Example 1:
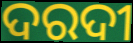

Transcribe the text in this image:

ଦରଦୀ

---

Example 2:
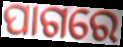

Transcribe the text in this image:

ପାଗରେ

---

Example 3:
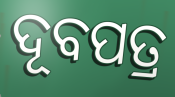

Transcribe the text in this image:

ଦୂବପତ୍ର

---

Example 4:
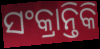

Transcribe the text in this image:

ସଂକ୍ରାନ୍ତିକି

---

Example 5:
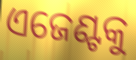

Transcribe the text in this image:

ଏଜେଣ୍ଟକୁ